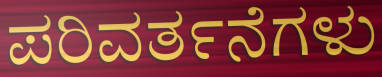
ಪರಿವರ್ತನೆಗಳು